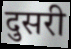
दुसरी